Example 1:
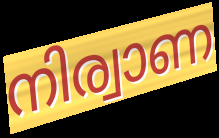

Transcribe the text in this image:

നിര്വാണ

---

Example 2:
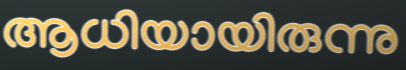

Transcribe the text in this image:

ആധിയായിരുന്നു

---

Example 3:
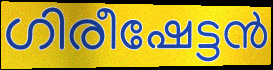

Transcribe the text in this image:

ഗിരീഷേട്ടൻ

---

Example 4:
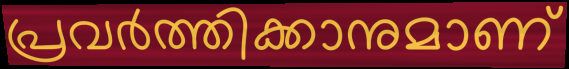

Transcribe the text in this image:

പ്രവർത്തിക്കാനുമാണ്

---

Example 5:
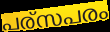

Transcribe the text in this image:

പര്സപരം